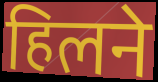
हिलने